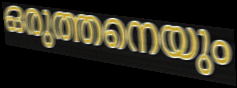
ഒരുത്തനെയും